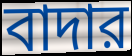
বাদার